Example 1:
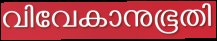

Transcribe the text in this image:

വിവേകാനുഭൂതി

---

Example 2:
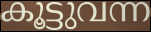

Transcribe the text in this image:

കൂട്ടുവന്ന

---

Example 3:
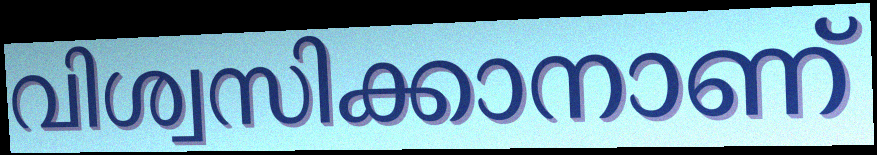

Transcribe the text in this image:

വിശ്വസിക്കാനാണ്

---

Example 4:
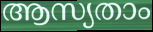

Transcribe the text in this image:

ആസ്യതാം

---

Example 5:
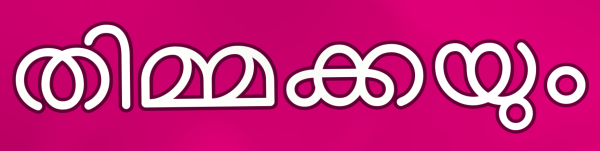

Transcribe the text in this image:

തിമ്മക്കയും